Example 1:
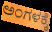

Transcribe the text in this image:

ಅಂಗಳಕ್ಕೆ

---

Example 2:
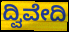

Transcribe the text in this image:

ದ್ವಿವೇದಿ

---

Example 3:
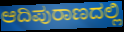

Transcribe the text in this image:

ಆದಿಪುರಾಣದಲ್ಲಿ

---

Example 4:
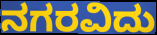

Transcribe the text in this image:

ನಗರವಿದು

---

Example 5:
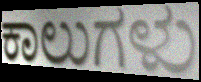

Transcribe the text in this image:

ಕಾಲುಗಳು